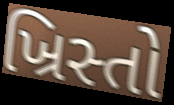
ખ્રિસ્તો